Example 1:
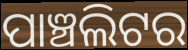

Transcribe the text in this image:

ପାଞ୍ଚଲିଟର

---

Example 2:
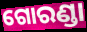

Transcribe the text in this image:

ଗୋରଣ୍ଡା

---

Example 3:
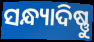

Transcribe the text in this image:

ସନ୍ଧ୍ୟାଦିଷ୍ଣୁ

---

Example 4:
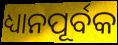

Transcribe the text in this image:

ଧ୍ୟାନପୂର୍ବକ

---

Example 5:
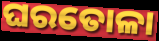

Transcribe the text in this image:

ଘରତୋଳା